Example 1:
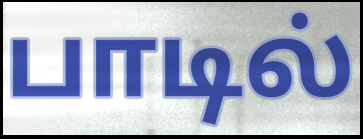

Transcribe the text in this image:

பாடில்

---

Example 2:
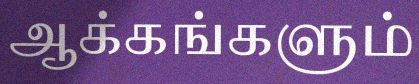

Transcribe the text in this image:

ஆக்கங்களும்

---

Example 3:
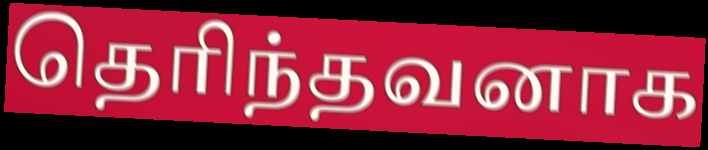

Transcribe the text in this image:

தெரிந்தவனாக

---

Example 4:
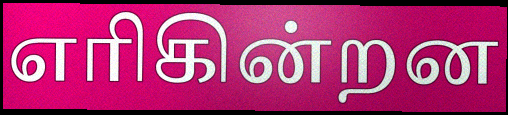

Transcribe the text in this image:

எரிகின்றன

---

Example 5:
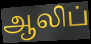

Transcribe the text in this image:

ஆலிப்